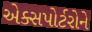
એક્સપોર્ટરોને